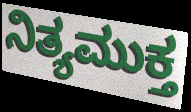
ನಿತ್ಯಮುಕ್ತ